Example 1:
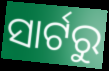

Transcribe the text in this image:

ସାର୍ଟରୁ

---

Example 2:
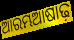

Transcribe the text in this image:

ଆରମ୍ଭଆଷାଢ଼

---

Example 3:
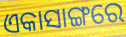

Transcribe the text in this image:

ଏକାସାଙ୍ଗରେ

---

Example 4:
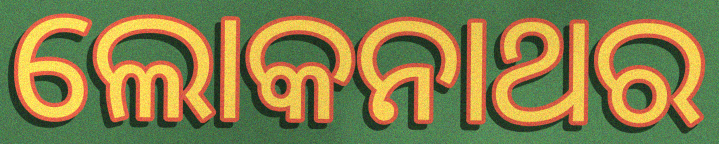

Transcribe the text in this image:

ଲୋକନାଥର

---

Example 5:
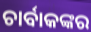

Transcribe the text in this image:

ଚାର୍ବାକଙ୍କର